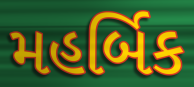
મહર્બિક